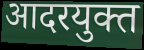
आदरयुक्त